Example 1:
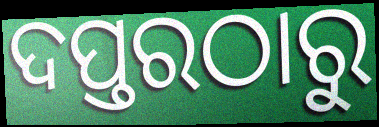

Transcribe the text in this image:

ଦପ୍ତରଠାରୁ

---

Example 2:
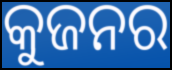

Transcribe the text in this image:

କୁଜନର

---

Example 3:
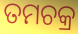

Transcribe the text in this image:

ତମଚକ୍ର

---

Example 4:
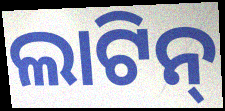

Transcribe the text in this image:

ଲାଟିନ୍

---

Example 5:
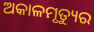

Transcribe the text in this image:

ଅକାଳମୃତ୍ୟୁର